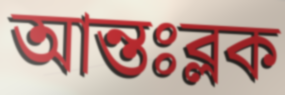
আন্তঃব্লক